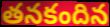
తనకందిన